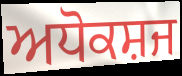
ਅਧੋਕਸ਼ਜ